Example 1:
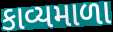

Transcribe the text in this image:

કાવ્યમાળા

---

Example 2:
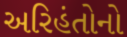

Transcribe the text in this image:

અરિહંતોનો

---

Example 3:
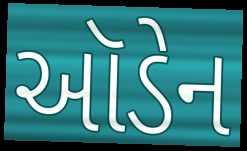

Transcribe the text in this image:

ઑડેન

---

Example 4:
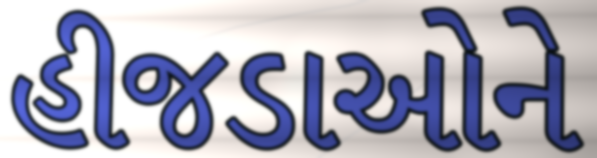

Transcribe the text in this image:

હીજડાઓને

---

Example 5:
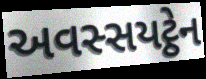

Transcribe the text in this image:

અવસ્સયટ્ઠેન